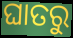
ଘାତରୁ